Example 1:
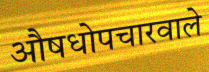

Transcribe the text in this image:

औषधोपचारवाले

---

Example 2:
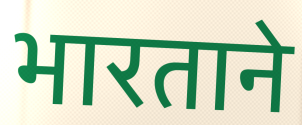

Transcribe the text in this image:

भारताने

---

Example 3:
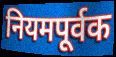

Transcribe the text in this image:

नियमपूर्वक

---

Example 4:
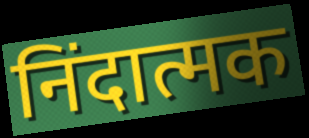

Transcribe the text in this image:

निंदात्मक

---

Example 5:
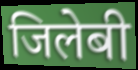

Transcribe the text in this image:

जिलेबी